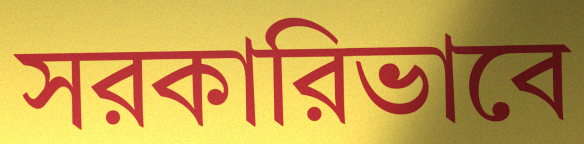
সরকারিভাবে